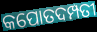
କପୋତଦମ୍ପତୀ